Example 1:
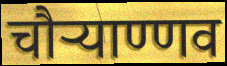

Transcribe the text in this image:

चौऱ्याण्णव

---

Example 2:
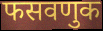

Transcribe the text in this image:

फसवणुक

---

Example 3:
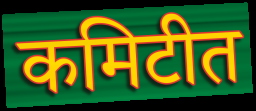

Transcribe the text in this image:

कमिटीत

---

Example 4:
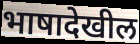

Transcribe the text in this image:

भाषादेखील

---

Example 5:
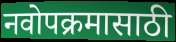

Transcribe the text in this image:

नवोपक्रमासाठी